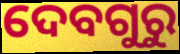
ଦେବଗୁରୁ